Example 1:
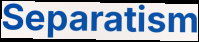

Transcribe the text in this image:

Separatism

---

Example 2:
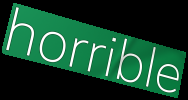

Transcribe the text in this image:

horrible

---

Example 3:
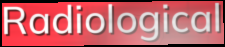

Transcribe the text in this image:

Radiological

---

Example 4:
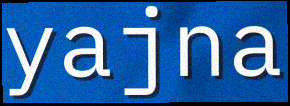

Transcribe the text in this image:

yajna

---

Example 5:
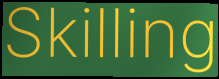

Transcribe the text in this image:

Skilling